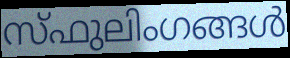
സ്ഫുലിംഗങ്ങൾ